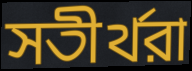
সতীর্থরা